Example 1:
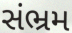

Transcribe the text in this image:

સંભ્રમ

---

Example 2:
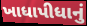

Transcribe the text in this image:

ખાધાપીધાનું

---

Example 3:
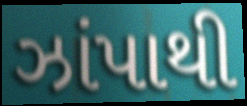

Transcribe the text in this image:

ઝાંપાથી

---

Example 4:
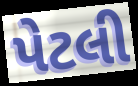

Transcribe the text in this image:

પેટલી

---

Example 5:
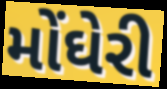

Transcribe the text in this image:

મોંઘેરી